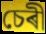
চেৰী